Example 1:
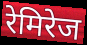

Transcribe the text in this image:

रेमिरेज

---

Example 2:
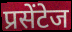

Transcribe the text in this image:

प्रसेंटेज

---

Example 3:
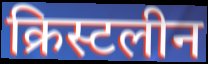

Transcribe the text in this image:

क्रिस्टलीन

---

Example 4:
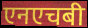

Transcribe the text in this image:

एनएचबी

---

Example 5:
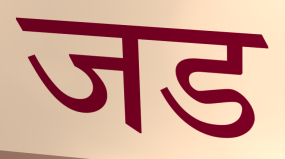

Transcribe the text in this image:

जड